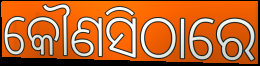
କୌଣସିଠାରେ